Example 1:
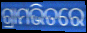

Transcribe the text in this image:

ଗ୍ରାମଭିତରେ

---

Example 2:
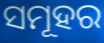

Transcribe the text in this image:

ସମୂହର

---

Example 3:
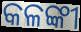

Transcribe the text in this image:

କଳଙ୍କୀ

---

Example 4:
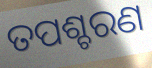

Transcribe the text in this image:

ତପଶ୍ଚରଣ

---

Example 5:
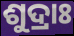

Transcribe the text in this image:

ଶୁଦ୍ରାଃ